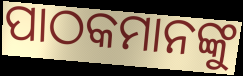
ପାଠକମାନଙ୍କୁ